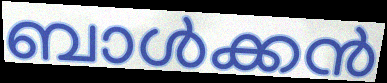
ബാൾക്കൻ